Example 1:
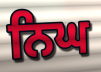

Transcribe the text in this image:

ਨਿਘ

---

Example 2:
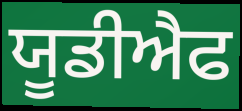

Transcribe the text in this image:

ਯੂਡੀਐਫ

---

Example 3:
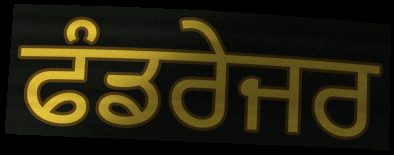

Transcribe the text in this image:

ਫੰਡਰੇਜਰ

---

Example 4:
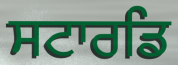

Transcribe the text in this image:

ਸਟਾਰਡਿ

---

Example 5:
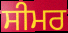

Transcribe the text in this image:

ਸੀਮਰ